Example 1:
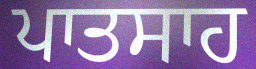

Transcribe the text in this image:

ਪਾਤਸਾਹ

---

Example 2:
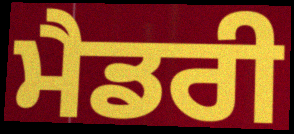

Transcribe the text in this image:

ਮੈਡਰੀ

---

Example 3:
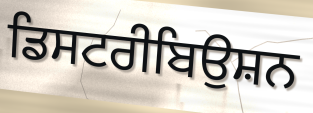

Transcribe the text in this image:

ਡਿਸਟਰੀਬਿਉਸ਼ਨ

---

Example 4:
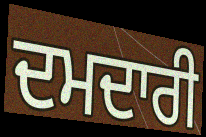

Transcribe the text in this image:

ਦਮਦਾਰੀ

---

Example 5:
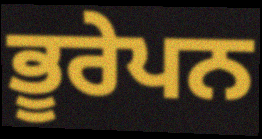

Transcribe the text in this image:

ਭੂਰੇਪਨ